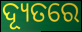
ଦ୍ୟୂତରେ